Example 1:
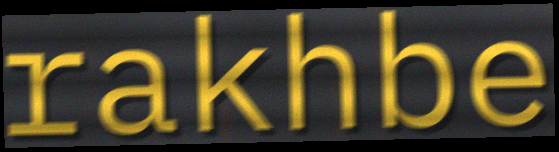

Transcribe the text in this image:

rakhbe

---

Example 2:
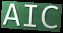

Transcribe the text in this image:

AIC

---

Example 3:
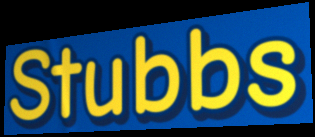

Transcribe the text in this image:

Stubbs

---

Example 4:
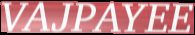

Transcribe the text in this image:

VAJPAYEE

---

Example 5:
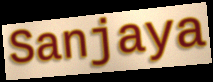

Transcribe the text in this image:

Sanjaya